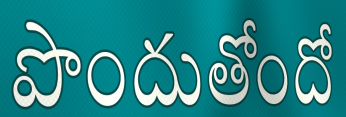
పొందుతోందో